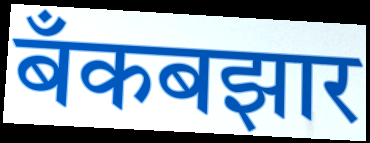
बँकबझार